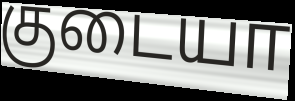
குடையா